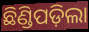
ଛିଣ୍ଡିପଡ଼ିଲା